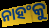
ନାହଂକୁ